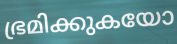
ഭ്രമിക്കുകയോ